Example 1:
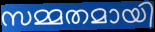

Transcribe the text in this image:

സമ്മതമായി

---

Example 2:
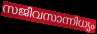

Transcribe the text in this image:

സജീവസാന്നിധ്യം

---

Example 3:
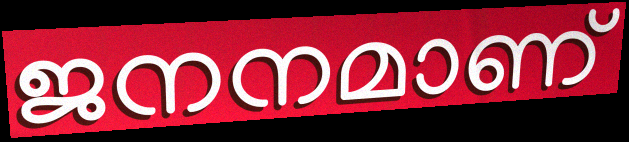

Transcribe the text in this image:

ജനനമാണ്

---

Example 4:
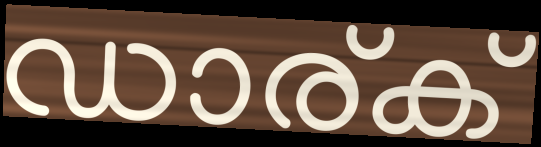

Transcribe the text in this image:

ഡാര്ക്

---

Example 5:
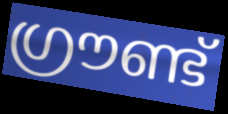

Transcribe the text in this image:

ഗ്രൗണ്ട്